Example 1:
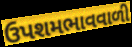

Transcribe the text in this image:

ઉપશમભાવવાળી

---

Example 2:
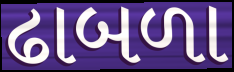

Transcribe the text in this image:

ઢાબળા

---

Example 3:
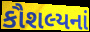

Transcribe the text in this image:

કૌશલ્યનાં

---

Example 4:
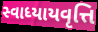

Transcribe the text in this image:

સ્વાધ્યાયવૃત્તિ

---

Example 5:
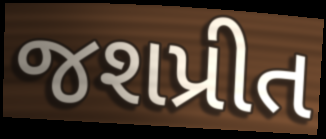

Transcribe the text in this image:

જશપ્રીત